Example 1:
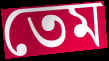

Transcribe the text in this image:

তেম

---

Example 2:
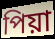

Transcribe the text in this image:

পিয়া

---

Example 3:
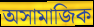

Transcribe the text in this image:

অসামাজিক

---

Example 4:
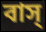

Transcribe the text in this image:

বাস্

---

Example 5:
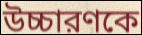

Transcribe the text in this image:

উচ্চারণকে